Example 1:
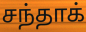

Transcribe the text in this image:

சந்தாக்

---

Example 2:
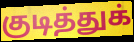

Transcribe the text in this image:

குடித்துக்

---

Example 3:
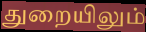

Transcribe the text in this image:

துறையிலும்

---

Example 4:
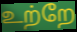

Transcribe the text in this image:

உற்றே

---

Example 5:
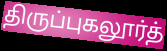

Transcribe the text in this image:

திருப்புகலூர்த்